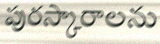
పురస్కారాలను